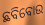
ଛବିବୋଉ